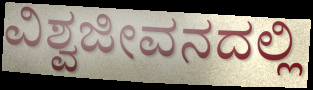
ವಿಶ್ವಜೀವನದಲ್ಲಿ